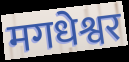
मगधेश्वर